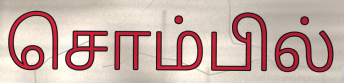
சொம்பில்